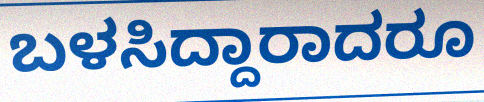
ಬಳಸಿದ್ದಾರಾದರೂ